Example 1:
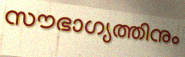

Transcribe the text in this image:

സൗഭാഗ്യത്തിനും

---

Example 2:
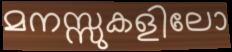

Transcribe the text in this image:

മനസ്സുകളിലോ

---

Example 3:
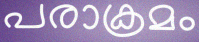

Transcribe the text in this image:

പരാക്രമം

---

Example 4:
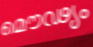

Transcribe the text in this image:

മൌഢ്യം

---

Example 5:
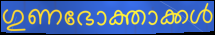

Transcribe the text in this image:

ഗുണഭോക്താക്കൾ